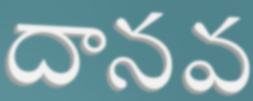
దానవ